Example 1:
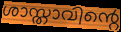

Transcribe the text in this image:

ശാസ്താവിന്റെ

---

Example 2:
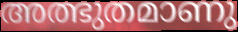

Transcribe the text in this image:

അത്ഭുതമാണു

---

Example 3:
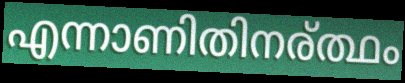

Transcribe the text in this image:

എന്നാണിതിനര്ത്ഥം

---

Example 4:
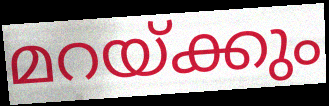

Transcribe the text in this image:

മറയ്ക്കും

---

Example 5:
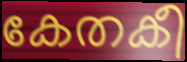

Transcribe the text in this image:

കേതകീ